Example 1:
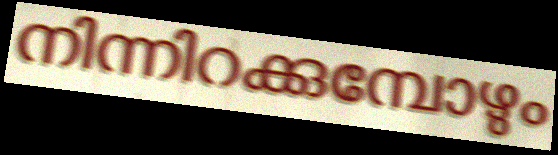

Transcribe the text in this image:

നിന്നിറക്കുമ്പോഴും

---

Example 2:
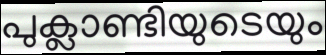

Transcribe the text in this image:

പുക്ലാണ്ടിയുടെയും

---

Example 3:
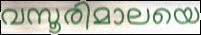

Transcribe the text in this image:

വസൂരിമാലയെ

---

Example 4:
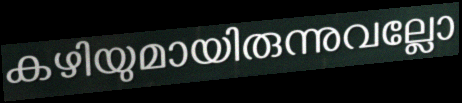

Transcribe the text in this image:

കഴിയുമായിരുന്നുവല്ലോ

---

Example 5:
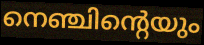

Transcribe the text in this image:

നെഞ്ചിന്റെയും